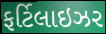
ફર્ટિલાઇઝર